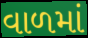
વાળમાં